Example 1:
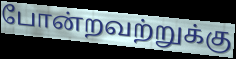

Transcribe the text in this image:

போன்றவற்றுக்கு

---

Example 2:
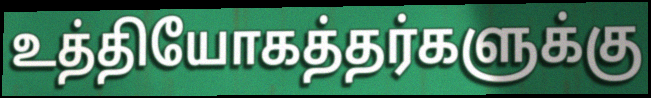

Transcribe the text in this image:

உத்தியோகத்தர்களுக்கு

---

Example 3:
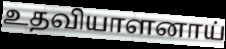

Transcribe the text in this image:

உதவியாளனாய்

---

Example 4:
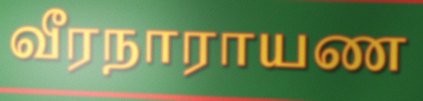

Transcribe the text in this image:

வீரநாராயண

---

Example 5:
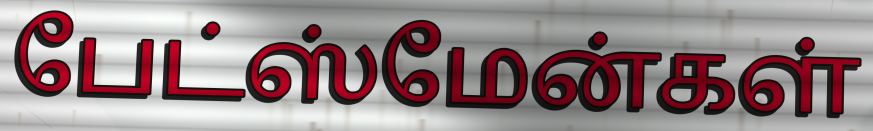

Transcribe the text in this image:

பேட்ஸ்மேன்கள்